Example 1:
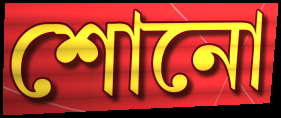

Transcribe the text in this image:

শোনো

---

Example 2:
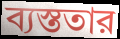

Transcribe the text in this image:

ব্যস্ততার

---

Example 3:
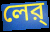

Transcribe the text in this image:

লের্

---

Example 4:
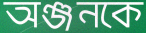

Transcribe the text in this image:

অঞ্জনকে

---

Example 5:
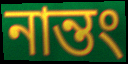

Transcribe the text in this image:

নান্তং